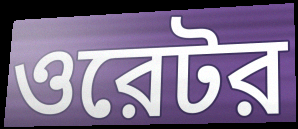
ওরেটর